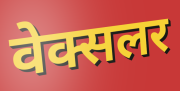
वेक्सलर